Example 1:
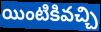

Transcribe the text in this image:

యింటికివచ్చి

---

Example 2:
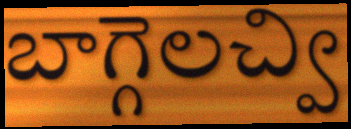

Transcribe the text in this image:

బాగ్గెలచ్వి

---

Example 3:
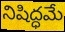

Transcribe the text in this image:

నిషిద్ధమే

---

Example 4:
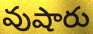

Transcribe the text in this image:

వుషారు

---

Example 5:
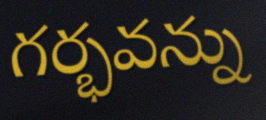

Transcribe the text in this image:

గర్భవన్ను